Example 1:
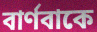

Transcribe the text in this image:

বার্ণবাকে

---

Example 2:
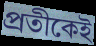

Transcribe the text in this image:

প্রতীকেই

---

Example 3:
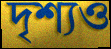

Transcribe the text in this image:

দৃশ্যও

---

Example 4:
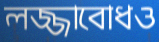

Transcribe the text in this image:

লজ্জাবোধও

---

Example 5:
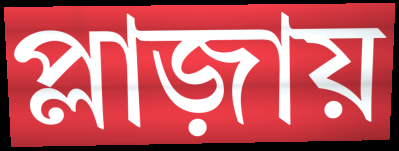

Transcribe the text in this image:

প্লাজ়ায়